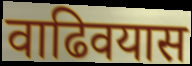
वाढिवयास